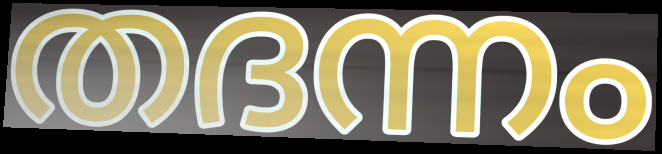
തദന്നം